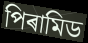
পিৰামিড